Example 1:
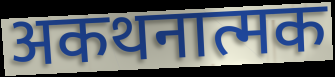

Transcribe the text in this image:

अकथनात्मक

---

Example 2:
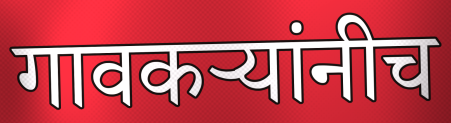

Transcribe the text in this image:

गावकऱ्यांनीच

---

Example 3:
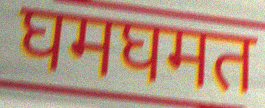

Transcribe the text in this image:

घमघमत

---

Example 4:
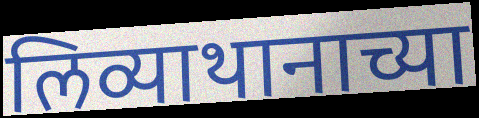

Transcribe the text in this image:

लिव्याथानाच्या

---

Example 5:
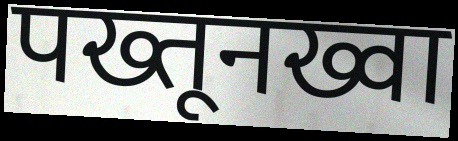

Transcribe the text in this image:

पख्तूनख्वा